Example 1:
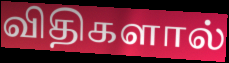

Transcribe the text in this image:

விதிகளால்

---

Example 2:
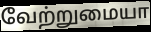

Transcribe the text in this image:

வேற்றுமையா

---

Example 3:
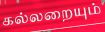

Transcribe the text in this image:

கல்லறையும்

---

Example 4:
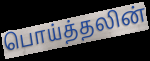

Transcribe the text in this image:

பொய்த்தலின்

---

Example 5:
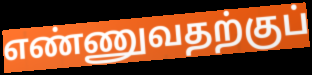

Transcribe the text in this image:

எண்ணுவதற்குப்